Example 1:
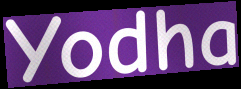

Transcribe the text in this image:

Yodha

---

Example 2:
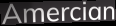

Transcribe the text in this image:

Amercian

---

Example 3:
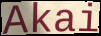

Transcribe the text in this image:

Akai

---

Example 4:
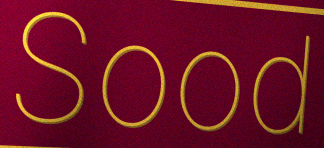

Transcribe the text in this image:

Sood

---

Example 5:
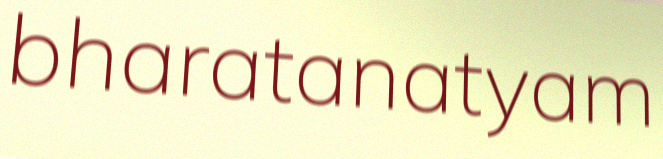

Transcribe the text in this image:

bharatanatyam